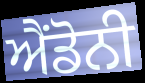
ਐਂਡੋਨੀ